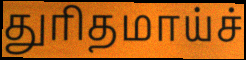
துரிதமாய்ச்